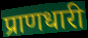
प्राणधारी